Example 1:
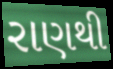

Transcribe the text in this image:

રાણથી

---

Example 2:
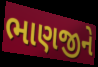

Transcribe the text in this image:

ભાણજીને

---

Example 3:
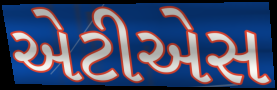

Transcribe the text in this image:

એટીએસ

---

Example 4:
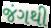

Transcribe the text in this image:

જંગથી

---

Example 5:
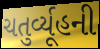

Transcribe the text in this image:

ચતુર્વ્યૂહની